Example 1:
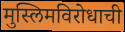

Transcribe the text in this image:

मुस्लिमविरोधाची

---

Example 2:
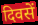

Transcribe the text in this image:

दिवसें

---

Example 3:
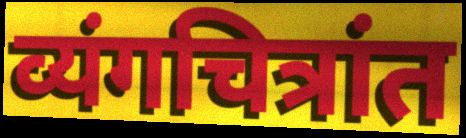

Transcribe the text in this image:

व्यंगचित्रांत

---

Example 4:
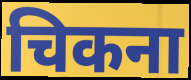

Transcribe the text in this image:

चिकना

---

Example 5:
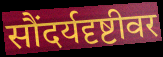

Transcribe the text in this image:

सौंदर्यदृष्टीवर